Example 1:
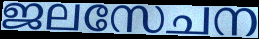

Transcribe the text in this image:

ജലസേചന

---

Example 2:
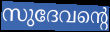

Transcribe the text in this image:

സുദേവന്റെ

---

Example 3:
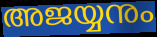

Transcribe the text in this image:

അജയ്യനും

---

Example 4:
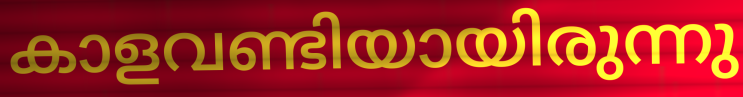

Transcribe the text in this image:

കാളവണ്ടിയായിരുന്നു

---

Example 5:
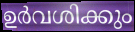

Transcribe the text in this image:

ഉർവശിക്കും